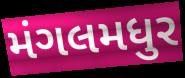
મંગલમધુર